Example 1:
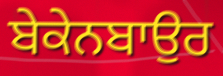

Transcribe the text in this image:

ਬੇਕੇਨਬਾਉਰ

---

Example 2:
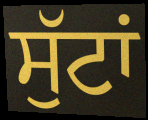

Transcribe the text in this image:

ਸੁੱਟਾਂ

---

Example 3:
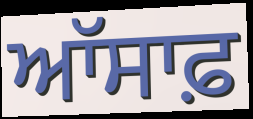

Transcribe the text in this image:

ਆੱਸਾਫ਼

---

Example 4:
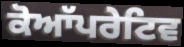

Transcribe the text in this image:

ਕੋਆੱਪਰੇਟਿਵ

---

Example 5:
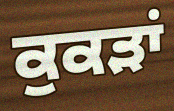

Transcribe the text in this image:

ਕੁਕੜਾਂ